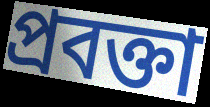
প্ৰবক্তা